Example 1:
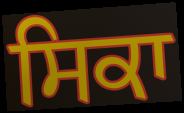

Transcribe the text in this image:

ਸਿਕਾ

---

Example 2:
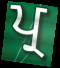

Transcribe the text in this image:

ਪ੍ਰ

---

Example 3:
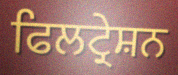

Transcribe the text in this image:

ਫਿਲਟ੍ਰੇਸ਼ਨ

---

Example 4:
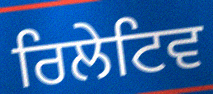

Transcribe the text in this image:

ਰਿਲੇਟਿਵ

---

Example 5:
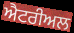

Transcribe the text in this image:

ਐਟਰੀਅਲ